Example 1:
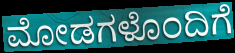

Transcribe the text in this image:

ಮೋಡಗಳೊಂದಿಗೆ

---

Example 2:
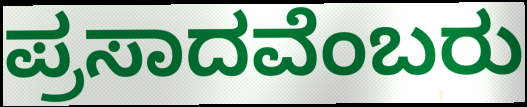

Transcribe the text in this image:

ಪ್ರಸಾದವೆಂಬರು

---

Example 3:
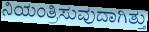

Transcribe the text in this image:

ನಿಯಂತ್ರಿಸುವುದಾಗಿತ್ತು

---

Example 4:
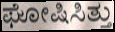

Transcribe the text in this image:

ಘೋಷಿಸಿತ್ತು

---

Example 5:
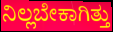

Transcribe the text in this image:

ನಿಲ್ಲಬೇಕಾಗಿತ್ತು